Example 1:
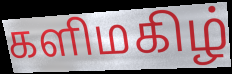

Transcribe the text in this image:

களிமகிழ்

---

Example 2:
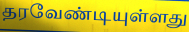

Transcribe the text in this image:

தரவேண்டியுள்ளது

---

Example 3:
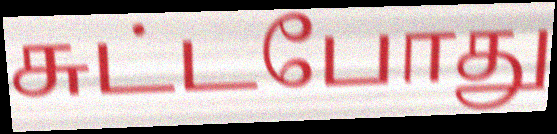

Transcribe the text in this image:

சுட்டபோது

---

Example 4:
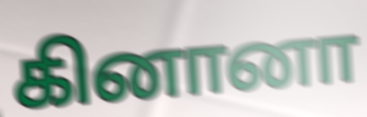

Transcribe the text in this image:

கினானா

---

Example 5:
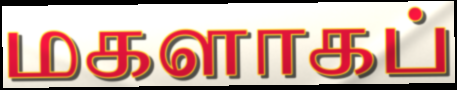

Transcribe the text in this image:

மகளாகப்